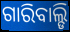
ଗାରିବାଲ୍ଡି